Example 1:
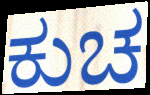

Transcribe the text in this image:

ಕುಚ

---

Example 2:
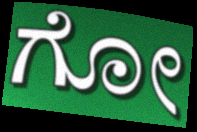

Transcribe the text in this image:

ಗೋ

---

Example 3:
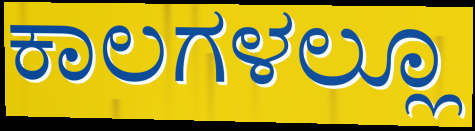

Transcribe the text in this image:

ಕಾಲಗಳಲ್ಲೂ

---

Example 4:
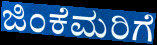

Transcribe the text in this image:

ಜಿಂಕೆಮರಿಗೆ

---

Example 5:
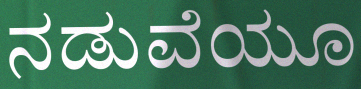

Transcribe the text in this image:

ನಡುವೆಯೂ